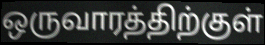
ஒருவாரத்திற்குள்